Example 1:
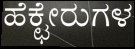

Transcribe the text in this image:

ಹೆಕ್ಟೇರುಗಳ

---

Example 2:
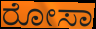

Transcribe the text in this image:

ರೋಸಾ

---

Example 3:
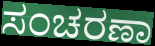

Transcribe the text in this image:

ಸಂಚರಣಾ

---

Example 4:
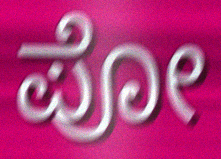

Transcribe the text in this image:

ಪೋ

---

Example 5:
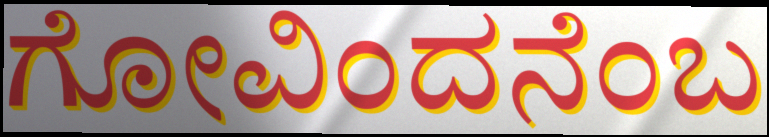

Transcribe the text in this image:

ಗೋವಿಂದನೆಂಬ